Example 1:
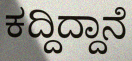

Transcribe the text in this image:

ಕದ್ದಿದ್ದಾನೆ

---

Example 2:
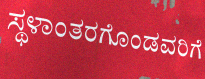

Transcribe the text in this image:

ಸ್ಥಳಾಂತರಗೊಂಡವರಿಗೆ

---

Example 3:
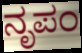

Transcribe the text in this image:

ನೃಪಂ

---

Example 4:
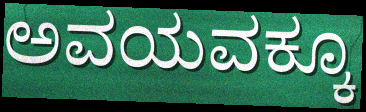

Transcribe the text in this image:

ಅವಯವಕ್ಕೂ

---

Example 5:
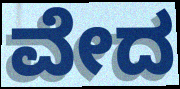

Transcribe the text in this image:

ವೇದ